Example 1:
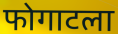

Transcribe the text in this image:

फोगाटला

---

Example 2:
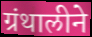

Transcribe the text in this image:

ग्रंथालीने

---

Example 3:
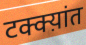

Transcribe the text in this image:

टक्क्य़ांत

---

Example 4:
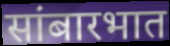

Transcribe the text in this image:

सांबारभात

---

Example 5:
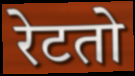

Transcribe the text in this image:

रेटतो